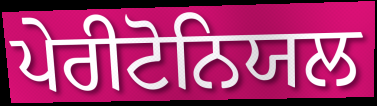
ਪੇਰੀਟੋਨਿਯਲ